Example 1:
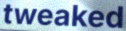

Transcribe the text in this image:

tweaked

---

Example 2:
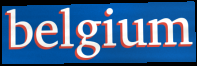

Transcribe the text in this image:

belgium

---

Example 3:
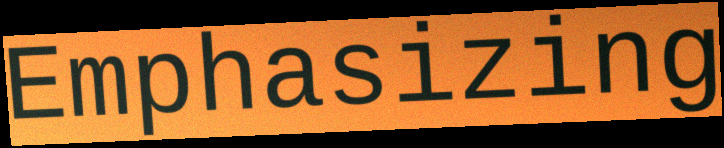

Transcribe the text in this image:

Emphasizing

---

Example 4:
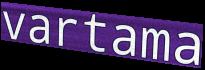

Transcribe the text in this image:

vartama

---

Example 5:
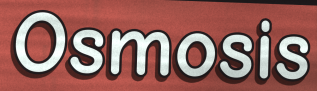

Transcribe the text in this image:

Osmosis